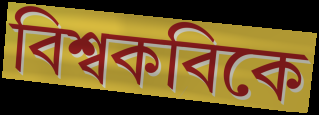
বিশ্বকবিকে